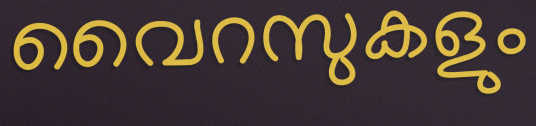
വൈറസുകളും